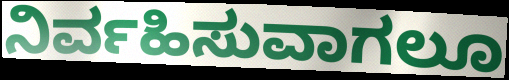
ನಿರ್ವಹಿಸುವಾಗಲೂ